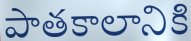
పాతకాలానికి